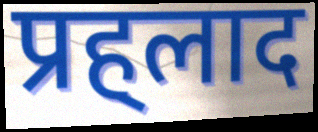
प्रह्‌लाद